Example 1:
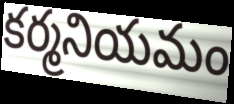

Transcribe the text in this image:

కర్మనియమం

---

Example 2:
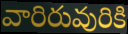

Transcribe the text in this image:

వారిరువురికి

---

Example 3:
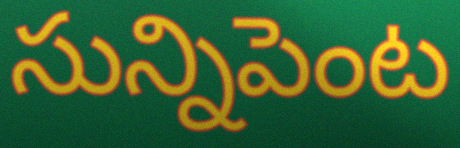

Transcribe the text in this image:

సున్నిపెంట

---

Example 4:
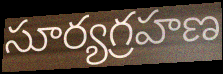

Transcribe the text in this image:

సూర్యగ్రహణ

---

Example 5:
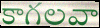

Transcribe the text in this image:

కాగలవా